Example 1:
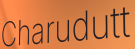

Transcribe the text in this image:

Charudutt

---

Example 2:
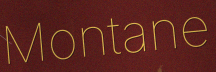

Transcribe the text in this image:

Montane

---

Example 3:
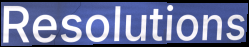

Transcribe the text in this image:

Resolutions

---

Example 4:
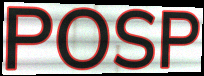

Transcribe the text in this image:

POSP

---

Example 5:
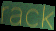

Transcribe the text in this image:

rack